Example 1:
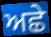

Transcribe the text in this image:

ਅਛੇ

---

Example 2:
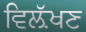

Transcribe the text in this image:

ਵਿਲ਼ੱਖਣ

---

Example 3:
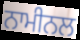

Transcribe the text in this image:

ਨਾਮੀਨਲ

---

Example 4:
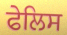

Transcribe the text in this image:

ਫੇਲਿਸ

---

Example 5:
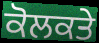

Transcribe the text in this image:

ਕੋਲਕਤੇ